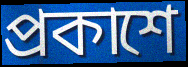
প্রকাশে